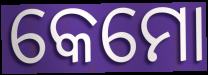
କେମୋ